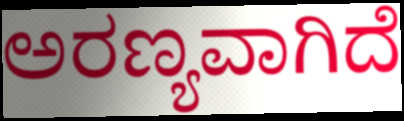
ಅರಣ್ಯವಾಗಿದೆ